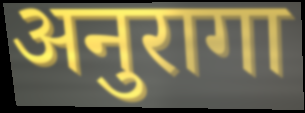
अनुरागा